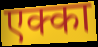
एक्का